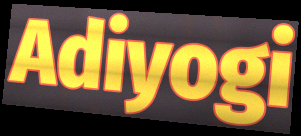
Adiyogi